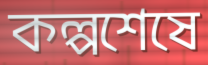
কল্পশেষে